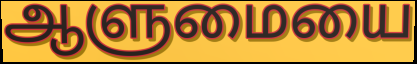
ஆளுமையை